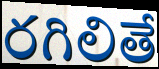
రగిలితే